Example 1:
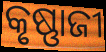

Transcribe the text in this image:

କୃଷ୍ଣାଜୀ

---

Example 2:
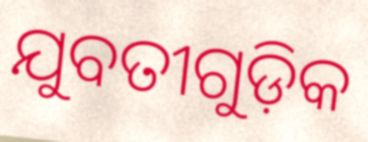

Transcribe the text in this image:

ଯୁବତୀଗୁଡ଼ିକ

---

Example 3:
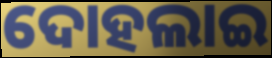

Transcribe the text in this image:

ଦୋହଲାଇ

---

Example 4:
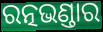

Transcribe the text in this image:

ରତ୍ନଭଣ୍ଡାର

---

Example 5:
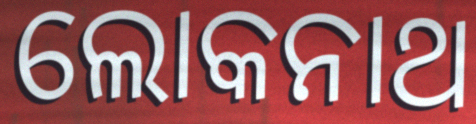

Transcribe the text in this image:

ଲୋକନାଥ